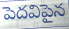
పెదవిపైన